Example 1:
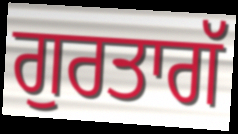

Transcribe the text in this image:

ਗੁਰਤਾਗੱ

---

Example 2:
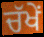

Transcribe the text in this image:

ਚੱਖੇਂ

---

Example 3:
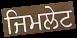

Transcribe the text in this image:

ਜਿਮਲੇਟ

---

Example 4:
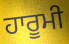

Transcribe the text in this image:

ਹਾਰੂਮੀ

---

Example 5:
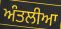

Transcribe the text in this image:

ਅੰਤਲੀਆ